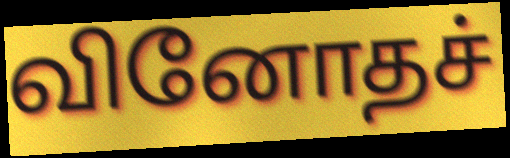
வினோதச்